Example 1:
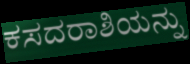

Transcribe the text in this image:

ಕಸದರಾಶಿಯನ್ನು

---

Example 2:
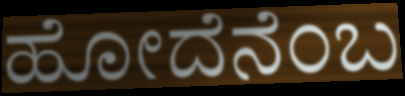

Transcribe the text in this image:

ಹೋದೆನೆಂಬ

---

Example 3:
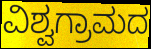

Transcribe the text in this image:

ವಿಶ್ವಗ್ರಾಮದ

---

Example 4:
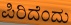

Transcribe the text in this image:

ಪಿರಿದೆಂದು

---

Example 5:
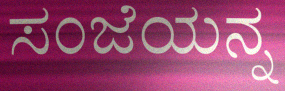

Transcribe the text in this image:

ಸಂಜೆಯನ್ನ